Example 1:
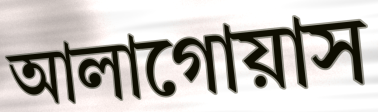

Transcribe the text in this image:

আলাগোয়াস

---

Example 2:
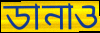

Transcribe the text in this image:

ডানাও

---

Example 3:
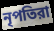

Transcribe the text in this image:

নৃপতিরা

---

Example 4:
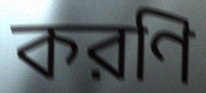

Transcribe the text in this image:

করণি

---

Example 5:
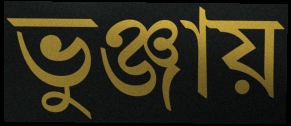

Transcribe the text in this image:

ভুঞ্জায়